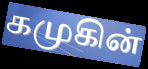
கமுகின்